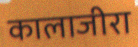
कालाजीरा